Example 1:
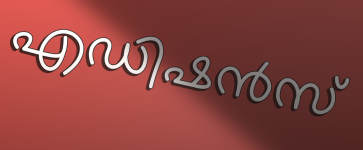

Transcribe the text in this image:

എഡിഷൻസ്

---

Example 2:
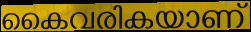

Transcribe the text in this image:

കൈവരികയാണ്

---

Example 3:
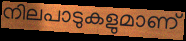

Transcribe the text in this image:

നിലപാടുകളുമാണ്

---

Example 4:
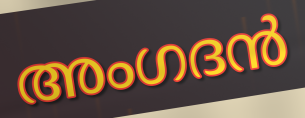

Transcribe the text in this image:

അംഗദൻ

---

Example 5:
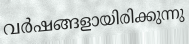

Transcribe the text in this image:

വർഷങ്ങളായിരിക്കുന്നു